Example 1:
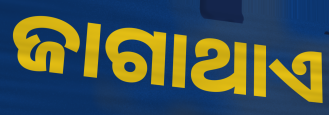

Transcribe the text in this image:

ଜାଗାଥାଏ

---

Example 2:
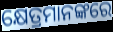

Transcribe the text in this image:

କ୍ଷେତ୍ରମାନଙ୍କରେ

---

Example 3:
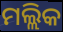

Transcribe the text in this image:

ମଲ୍ଲିକ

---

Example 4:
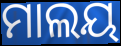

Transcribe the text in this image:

ମାଲୟ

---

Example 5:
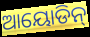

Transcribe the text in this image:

ଆୟୋଡିନ୍